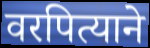
वरपित्याने